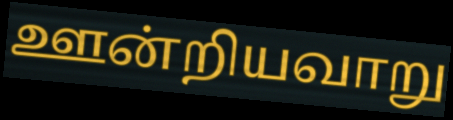
ஊன்றியவாறு